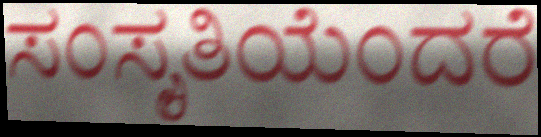
ಸಂಸ್ಕೃತಿಯೆಂದರೆ